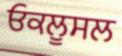
ਓਕਲੂਸਲ